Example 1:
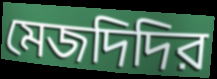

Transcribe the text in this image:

মেজদিদির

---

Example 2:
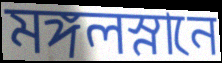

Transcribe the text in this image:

মঙ্গলস্নানে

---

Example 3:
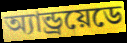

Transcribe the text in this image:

অ্যান্ড্রয়েডে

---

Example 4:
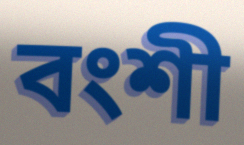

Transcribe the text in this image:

বংশী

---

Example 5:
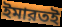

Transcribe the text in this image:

ইমারতই